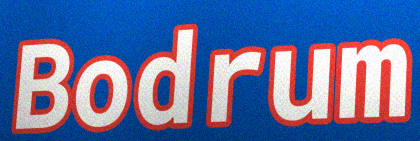
Bodrum